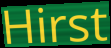
Hirst